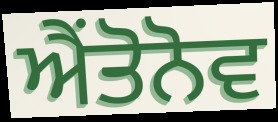
ਐਂਤੋਨੋਵ